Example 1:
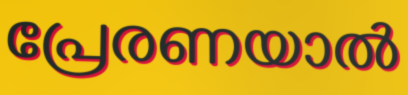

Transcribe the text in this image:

പ്രേരണയാൽ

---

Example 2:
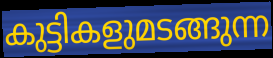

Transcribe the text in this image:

കുട്ടികളുമടങ്ങുന്ന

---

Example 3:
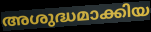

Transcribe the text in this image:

അശുദ്ധമാക്കിയ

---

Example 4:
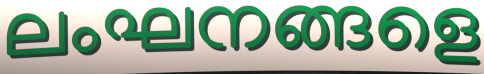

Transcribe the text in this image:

ലംഘനങ്ങളെ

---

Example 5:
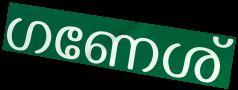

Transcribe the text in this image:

ഗണേശ്